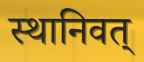
स्थानिवत्